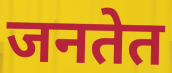
जनतेत